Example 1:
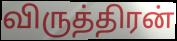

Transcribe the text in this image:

விருத்திரன்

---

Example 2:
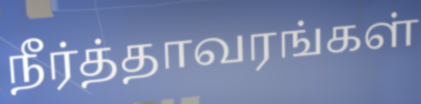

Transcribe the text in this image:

நீர்த்தாவரங்கள்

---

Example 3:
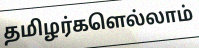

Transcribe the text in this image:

தமிழர்களெல்லாம்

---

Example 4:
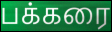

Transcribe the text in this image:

பக்கரை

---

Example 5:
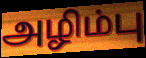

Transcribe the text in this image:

அழிம்பு